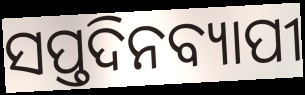
ସପ୍ତଦିନବ୍ୟାପୀ